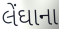
લેંઘાના